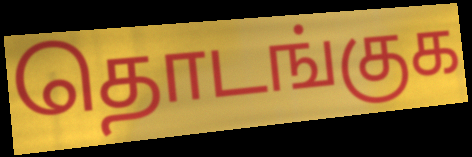
தொடங்குக